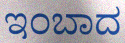
ಇಂಬಾದ